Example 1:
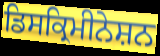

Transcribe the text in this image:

ਡਿਸਕ੍ਰਿਮੀਨੇਸ਼ਨ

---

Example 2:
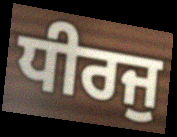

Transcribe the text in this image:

ਧੀਰਜੁ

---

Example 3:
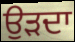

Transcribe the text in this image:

ਉੜਦਾ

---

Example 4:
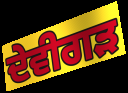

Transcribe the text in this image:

ਦੇਵੀਗੜ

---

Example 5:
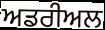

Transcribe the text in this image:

ਅਡਰੀਅਲ